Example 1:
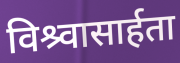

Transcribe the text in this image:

विश्र्वासार्हता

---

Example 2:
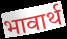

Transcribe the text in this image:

भावार्थ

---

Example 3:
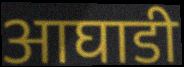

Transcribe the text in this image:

आघाडी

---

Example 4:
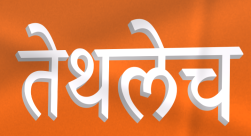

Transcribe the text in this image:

तेथलेच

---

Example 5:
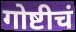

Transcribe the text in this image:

गोष्टीचं